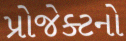
પ્રોજેક્ટનો